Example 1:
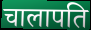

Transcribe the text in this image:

चालापति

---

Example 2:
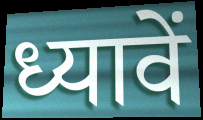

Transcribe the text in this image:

ध्यावें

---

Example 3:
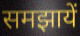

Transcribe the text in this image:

समझायें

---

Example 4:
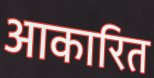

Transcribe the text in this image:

आकारित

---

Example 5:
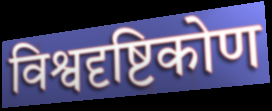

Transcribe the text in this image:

विश्वदृष्टिकोण